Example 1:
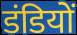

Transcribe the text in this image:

डंडियों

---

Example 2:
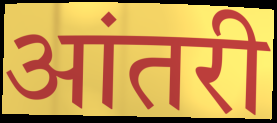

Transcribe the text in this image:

आंतरी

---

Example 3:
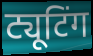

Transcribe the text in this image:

ट्यूटिंग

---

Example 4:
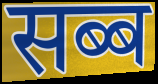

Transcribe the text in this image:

सब्ब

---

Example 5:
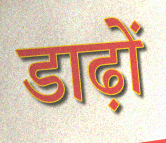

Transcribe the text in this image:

डाढ़ों